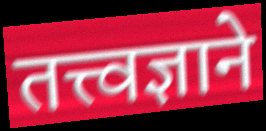
तत्त्वज्ञाने